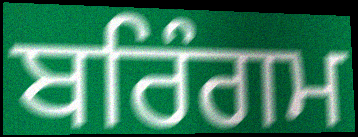
ਬਰਿੰਗਮ